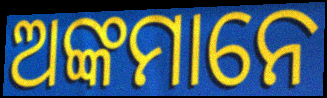
ଅଙ୍କମାନେ